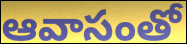
ఆవాసంతో